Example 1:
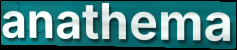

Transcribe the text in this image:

anathema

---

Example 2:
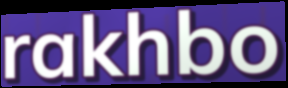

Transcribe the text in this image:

rakhbo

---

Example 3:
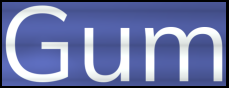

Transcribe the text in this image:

Gum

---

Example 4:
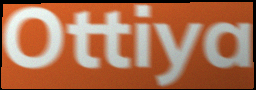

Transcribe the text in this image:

Ottiya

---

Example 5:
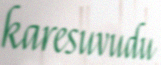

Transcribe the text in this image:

karesuvudu